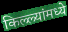
किल्ल्यांमध्ये